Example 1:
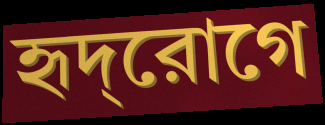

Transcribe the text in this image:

হৃদ্‌রোগে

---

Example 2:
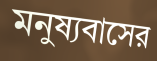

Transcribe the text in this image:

মনুষ্যবাসের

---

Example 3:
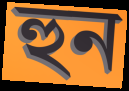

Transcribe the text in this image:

হুন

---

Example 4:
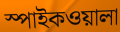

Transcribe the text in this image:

স্পাইকওয়ালা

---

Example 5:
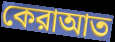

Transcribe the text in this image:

কেরাআত